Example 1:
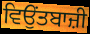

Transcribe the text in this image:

ਵਿਉਂਤਬਾਜ਼ੀ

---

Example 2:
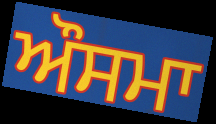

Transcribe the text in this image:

ਔਸਮਾ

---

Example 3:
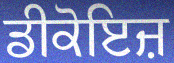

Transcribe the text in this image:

ਡੀਕੋਇਜ਼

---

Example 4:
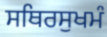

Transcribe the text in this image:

ਸਥਿਰਸੁਖਮੰ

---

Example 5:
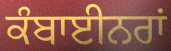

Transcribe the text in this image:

ਕੰਬਾਈਨਰਾਂ